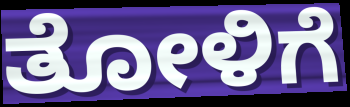
ತೋಳಿಗೆ